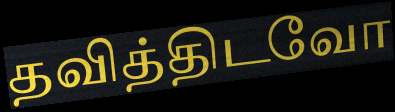
தவித்திடவோ